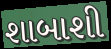
શાબાશી